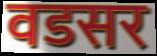
वडसर